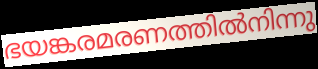
ഭയങ്കരമരണത്തിൽനിന്നു